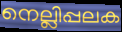
നെല്ലിപ്പലക